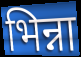
भिन्ना